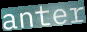
anter